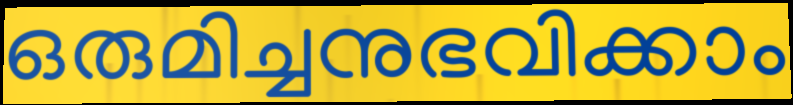
ഒരുമിച്ചനുഭവിക്കാം